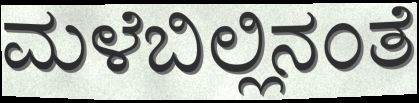
ಮಳೆಬಿಲ್ಲಿನಂತೆ